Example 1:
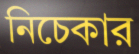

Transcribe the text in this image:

নিচেকার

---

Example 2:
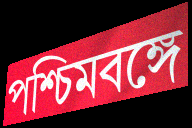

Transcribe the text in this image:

পশ্চিমবঙ্গে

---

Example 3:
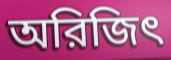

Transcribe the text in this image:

অরিজিৎ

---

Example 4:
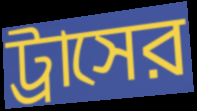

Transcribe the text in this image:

ট্রাসের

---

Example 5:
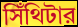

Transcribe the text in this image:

সিঁথিটার